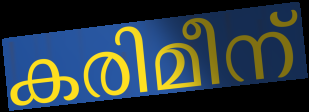
കരിമീന്